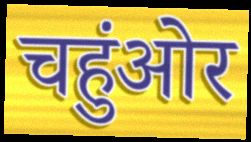
चहुंओर